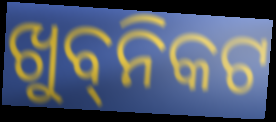
ଖୁବ୍‌ନିକଟ